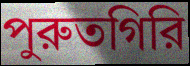
পুরুতগিরি